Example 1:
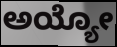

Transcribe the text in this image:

ಅಯ್ಯೋ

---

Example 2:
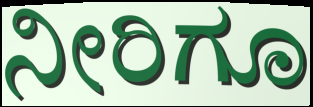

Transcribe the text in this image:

ನೀರಿಗೂ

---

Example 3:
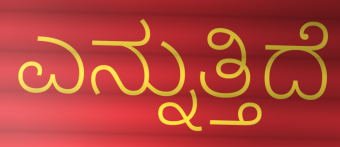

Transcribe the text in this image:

ಎನ್ನುತ್ತಿದೆ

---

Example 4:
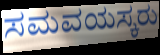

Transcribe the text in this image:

ಸಮವಯಸ್ಕರು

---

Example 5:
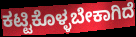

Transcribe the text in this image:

ಕಟ್ಟಿಕೊಳ್ಳಬೇಕಾಗಿದೆ